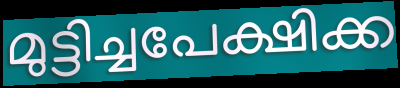
മുട്ടിച്ചപേക്ഷിക്ക